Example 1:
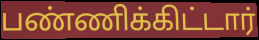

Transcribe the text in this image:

பண்ணிக்கிட்டார்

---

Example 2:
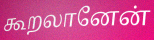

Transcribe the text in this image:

கூறலானேன்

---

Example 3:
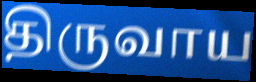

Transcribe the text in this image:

திருவாய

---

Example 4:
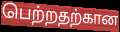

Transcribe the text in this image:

பெற்றதற்கான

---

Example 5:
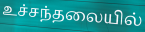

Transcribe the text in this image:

உச்சந்தலையில்